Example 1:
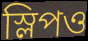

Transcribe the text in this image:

স্লিপও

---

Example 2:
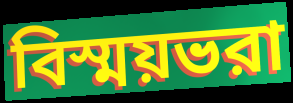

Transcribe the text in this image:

বিস্ময়ভরা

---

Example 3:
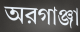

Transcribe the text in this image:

অরগাঞ্জা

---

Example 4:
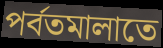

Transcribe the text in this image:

পর্বতমালাতে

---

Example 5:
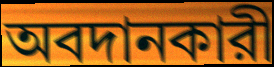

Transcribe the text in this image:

অবদানকারী